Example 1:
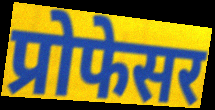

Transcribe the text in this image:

प्रोफेसर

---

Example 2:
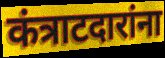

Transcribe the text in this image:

कंत्राटदारांना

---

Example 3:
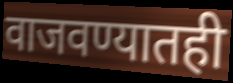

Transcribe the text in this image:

वाजवण्यातही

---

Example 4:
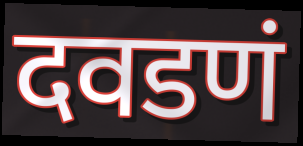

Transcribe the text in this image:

दवडणं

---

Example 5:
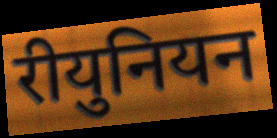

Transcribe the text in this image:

रीयुनियन